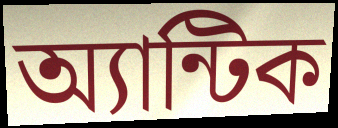
অ্যান্টিক